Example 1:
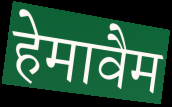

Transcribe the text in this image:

हेमावैम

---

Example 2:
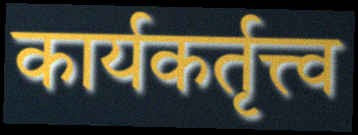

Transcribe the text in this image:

कार्यकर्तृत्त्व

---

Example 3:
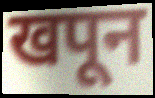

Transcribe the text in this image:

खपून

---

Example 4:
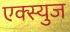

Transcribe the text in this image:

एक्स्युज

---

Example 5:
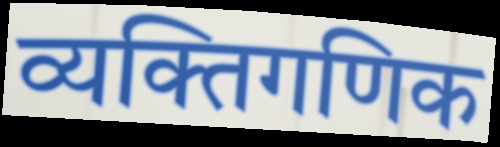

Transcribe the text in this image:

व्यक्तिगणिक